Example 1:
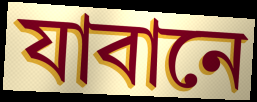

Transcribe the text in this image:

যাবানে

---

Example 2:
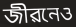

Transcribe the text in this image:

জীৱনেও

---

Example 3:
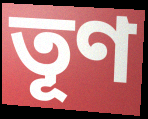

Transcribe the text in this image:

তূণ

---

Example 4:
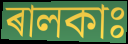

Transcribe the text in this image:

ৰালকাঃ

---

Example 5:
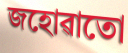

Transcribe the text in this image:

জহোৱাতো